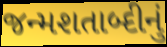
જન્મશતાબ્દીનું